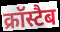
क्रॉस्टैब